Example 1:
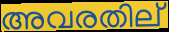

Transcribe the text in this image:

അവരതില്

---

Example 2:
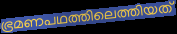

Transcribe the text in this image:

ഭ്രമണപഥത്തിലെത്തിയത്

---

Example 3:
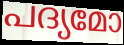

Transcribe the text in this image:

പദ്യമോ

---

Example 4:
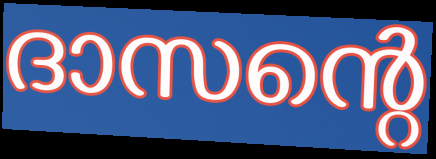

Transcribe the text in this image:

ദാസന്റെ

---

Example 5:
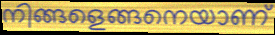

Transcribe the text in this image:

നിങ്ങളെങ്ങനെയാണ്